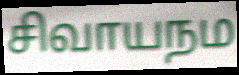
சிவாயநம